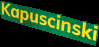
Kapuscinski